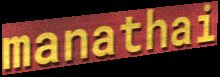
manathai